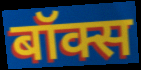
बॉक्स